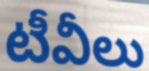
టీవీలు